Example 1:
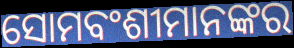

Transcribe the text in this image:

ସୋମବଂଶୀମାନଙ୍କର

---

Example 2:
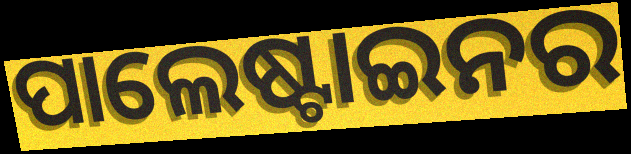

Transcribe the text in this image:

ପାଲେଷ୍ଟାଇନର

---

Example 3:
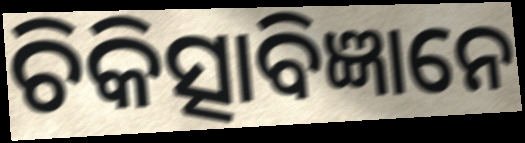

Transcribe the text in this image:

ଚିକିତ୍ସାବିଜ୍ଞାନେ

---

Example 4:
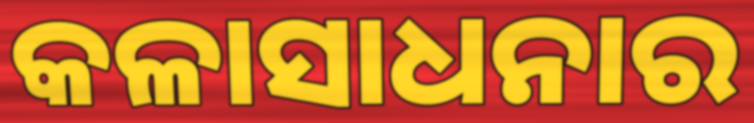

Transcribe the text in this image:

କଳାସାଧନାର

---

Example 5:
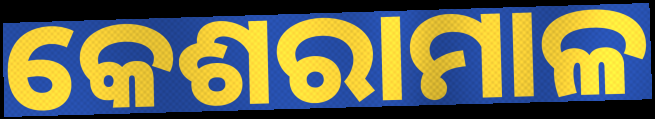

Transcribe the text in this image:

କେଶରାମାଳ